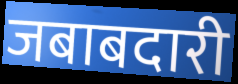
जबाबदारी